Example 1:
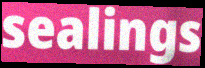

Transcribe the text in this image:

sealings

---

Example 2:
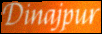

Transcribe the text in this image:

Dinajpur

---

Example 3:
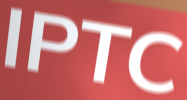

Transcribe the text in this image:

IPTC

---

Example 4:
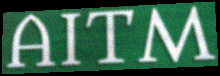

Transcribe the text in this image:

AITM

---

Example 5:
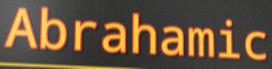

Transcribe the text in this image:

Abrahamic